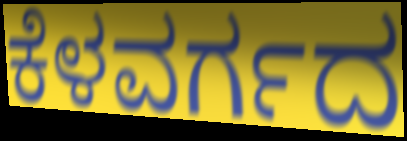
ಕೆಳವರ್ಗದ